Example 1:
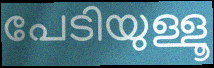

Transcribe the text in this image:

പേടിയുള്ളൂ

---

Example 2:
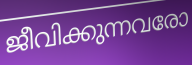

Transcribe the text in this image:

ജീവിക്കുന്നവരോ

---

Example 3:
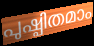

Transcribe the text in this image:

പുഷ്പിതമാം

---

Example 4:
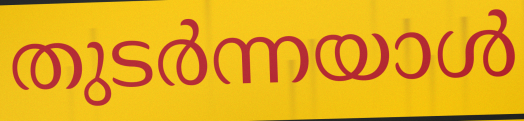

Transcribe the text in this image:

തുടർന്നയാൾ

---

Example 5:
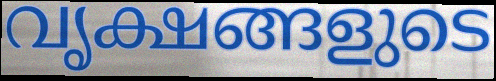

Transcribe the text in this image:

വൃക്ഷങ്ങളുടെ